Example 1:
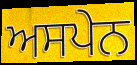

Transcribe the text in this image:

ਅਸਪੇਨ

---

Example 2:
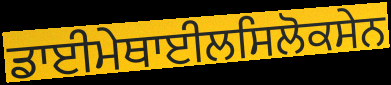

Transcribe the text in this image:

ਡਾਈਮੇਥਾਈਲਸਿਲੋਕਸੇਨ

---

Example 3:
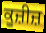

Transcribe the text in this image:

ਕੂਜ਼ੀਜ਼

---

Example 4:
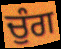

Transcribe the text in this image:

ਚੁੰਗ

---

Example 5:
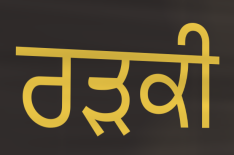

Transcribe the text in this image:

ਰੜਕੀ